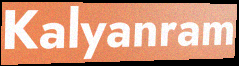
Kalyanram